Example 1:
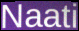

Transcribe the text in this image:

Naati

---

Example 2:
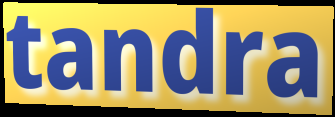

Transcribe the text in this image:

tandra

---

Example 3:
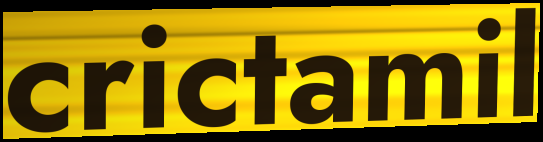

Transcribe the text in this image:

crictamil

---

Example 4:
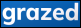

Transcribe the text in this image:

grazed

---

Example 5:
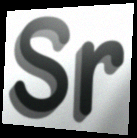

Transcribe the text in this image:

Sr